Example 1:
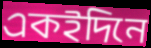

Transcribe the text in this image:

একইদিনে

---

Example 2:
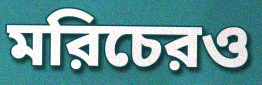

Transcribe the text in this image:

মরিচেরও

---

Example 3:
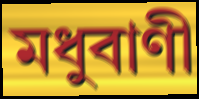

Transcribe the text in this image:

মধুবাণী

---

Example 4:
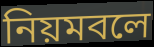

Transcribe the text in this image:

নিয়মবলে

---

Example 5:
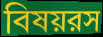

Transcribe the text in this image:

বিষয়রস